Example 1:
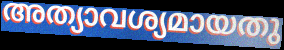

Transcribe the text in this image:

അത്യാവശ്യമായതു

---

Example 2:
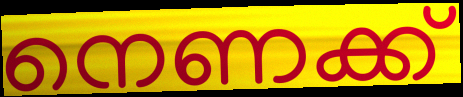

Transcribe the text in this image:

നെണക്ക്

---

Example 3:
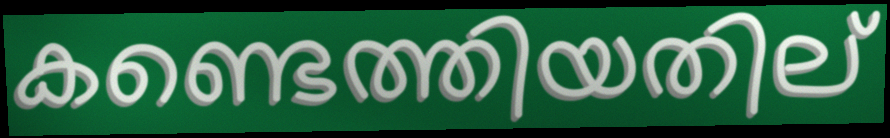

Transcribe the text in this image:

കണ്ടെത്തിയതില്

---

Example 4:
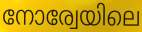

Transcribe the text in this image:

നോര്വേയിലെ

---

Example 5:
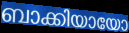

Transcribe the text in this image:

ബാക്കിയായോ